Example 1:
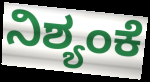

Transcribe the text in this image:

ನಿಶ್ಯಂಕೆ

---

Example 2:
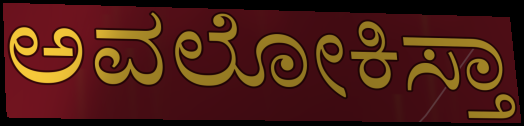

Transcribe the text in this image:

ಅವಲೋಕಿಸ್ತಾ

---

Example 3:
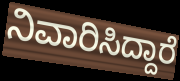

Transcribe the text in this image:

ನಿವಾರಿಸಿದ್ದಾರೆ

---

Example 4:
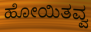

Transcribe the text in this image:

ಹೋಯಿತವ್ವ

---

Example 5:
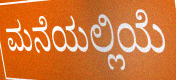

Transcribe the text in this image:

ಮನೆಯಲ್ಲಿಯೆ